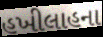
હખીલાહના